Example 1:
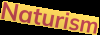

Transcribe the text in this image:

Naturism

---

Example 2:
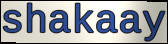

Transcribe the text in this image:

shakaay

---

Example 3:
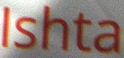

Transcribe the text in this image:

Ishta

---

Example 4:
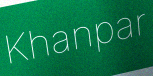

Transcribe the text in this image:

Khanpar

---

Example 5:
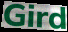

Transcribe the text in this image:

Gird